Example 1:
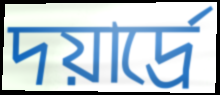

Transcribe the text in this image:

দয়ার্দ্রে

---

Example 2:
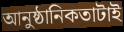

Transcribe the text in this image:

আনুষ্ঠানিকতাটাই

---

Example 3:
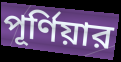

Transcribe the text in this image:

পূর্ণিয়ার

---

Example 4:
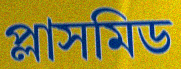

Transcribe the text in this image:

প্লাসমিড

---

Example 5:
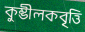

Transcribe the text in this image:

কুম্ভীলকবৃত্তি